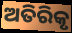
ଅତିରିକୃ